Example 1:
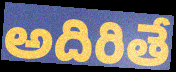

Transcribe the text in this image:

అదిరితే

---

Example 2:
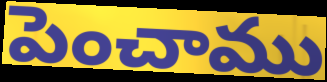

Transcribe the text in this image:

పెంచాము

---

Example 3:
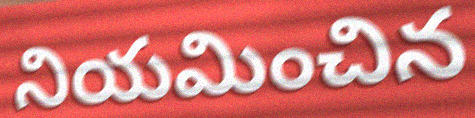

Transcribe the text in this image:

నియమించిన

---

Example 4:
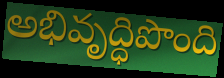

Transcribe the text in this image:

అభివృద్ధిపొంది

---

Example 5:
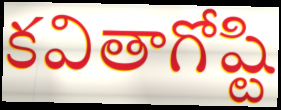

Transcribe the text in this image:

కవితాగోష్టి